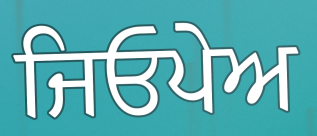
ਜਿਓਪੇਅ